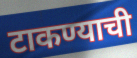
टाकण्याची